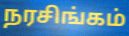
நரசிங்கம்